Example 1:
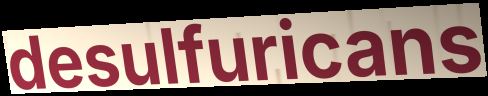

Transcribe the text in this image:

desulfuricans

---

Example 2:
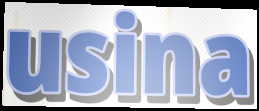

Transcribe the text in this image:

usina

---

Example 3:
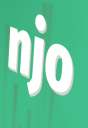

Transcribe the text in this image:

njo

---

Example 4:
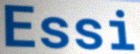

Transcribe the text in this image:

Essi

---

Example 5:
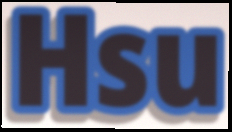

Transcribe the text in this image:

Hsu